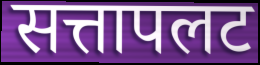
सत्तापलट